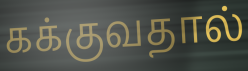
கக்குவதால்